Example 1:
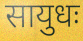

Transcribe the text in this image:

सायुधः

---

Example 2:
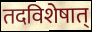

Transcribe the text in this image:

तदविशेषात्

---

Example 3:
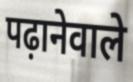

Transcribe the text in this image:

पढ़ानेवाले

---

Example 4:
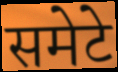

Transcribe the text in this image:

समेटे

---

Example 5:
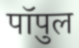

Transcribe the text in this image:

पॉपुल